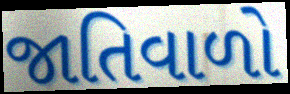
જાતિવાળો